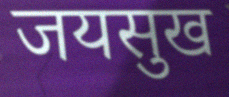
जयसुख